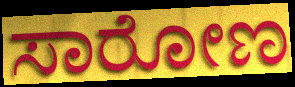
ಸಾರೋಣ